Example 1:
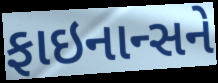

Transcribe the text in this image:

ફાઇનાન્સને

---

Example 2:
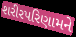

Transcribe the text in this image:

શરીરપરિણામને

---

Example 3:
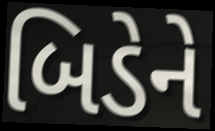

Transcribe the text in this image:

બિડેને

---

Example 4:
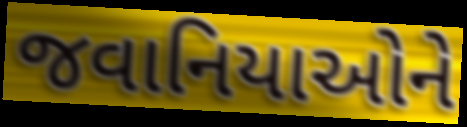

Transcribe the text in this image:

જવાનિયાઓને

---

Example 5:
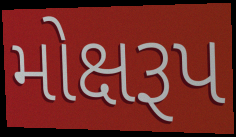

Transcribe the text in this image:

મોક્ષરૂપ